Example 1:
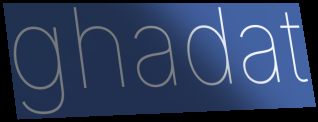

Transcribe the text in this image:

ghadat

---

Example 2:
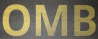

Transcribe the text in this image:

OMB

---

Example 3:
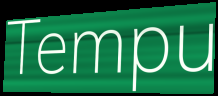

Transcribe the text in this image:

Tempu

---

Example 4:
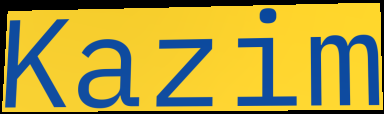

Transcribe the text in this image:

Kazim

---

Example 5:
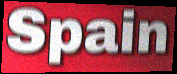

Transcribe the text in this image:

Spain